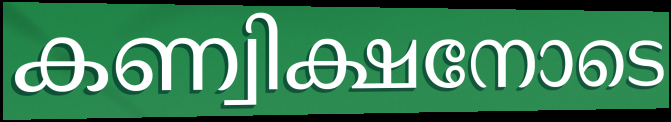
കണ്വിക്ഷനോടെ